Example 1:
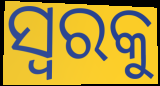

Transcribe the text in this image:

ସ୍ୱରକୁ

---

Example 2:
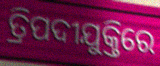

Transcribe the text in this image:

ତ୍ରିପଦୀଯୁକ୍ତିରେ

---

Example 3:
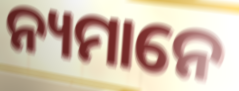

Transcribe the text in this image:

ନ୍ୟମାନେ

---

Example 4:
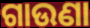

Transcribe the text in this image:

ଗାଉଣା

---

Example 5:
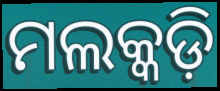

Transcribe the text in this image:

ମଲକ୍କଡ଼ି